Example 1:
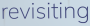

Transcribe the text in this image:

revisiting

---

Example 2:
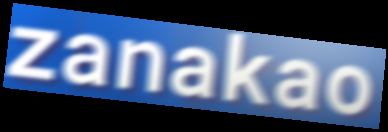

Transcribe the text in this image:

zanakao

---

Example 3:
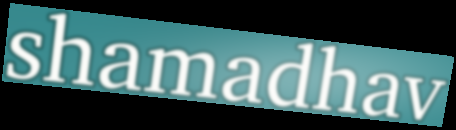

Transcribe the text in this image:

shamadhav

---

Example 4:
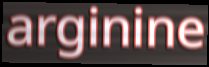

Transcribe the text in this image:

arginine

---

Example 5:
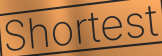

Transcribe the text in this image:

Shortest